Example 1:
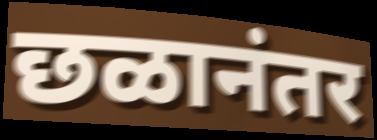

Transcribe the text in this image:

छळानंतर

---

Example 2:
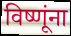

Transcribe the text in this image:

विष्णूंना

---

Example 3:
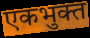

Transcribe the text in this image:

एकभुक्त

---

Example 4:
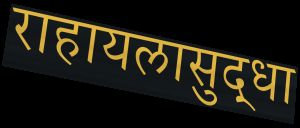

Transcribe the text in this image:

राहायलासुद्धा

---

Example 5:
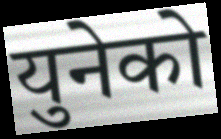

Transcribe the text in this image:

युनेको